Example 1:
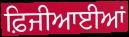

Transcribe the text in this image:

ਫ਼ਿਜੀਆਈਆਂ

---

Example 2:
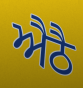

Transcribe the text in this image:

ਐਠੈ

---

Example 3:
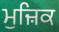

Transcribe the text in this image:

ਮੁਜ਼ਿਕ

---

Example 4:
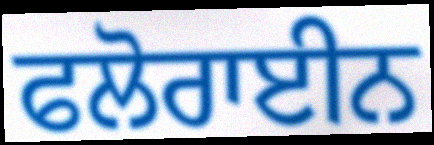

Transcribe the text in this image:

ਫਲੋਰਾਈਨ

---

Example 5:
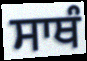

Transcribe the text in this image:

ਸਾਥੰ